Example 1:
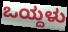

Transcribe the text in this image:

ಒಯ್ದಳು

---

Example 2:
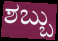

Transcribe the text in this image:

ಶಬ್ಬು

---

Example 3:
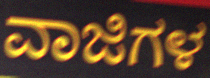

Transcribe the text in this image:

ವಾಜಿಗಳ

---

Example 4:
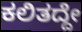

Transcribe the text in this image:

ಕಲಿತದ್ದೇ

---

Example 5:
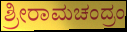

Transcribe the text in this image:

ಶ್ರೀರಾಮಚಂದ್ರಂ